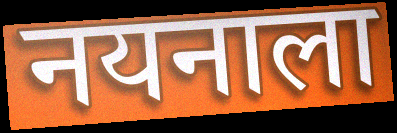
नयनाला